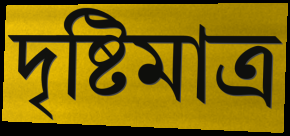
দৃষ্টিমাত্র